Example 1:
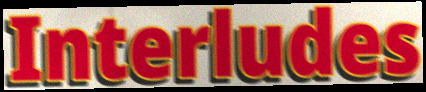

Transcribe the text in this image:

Interludes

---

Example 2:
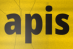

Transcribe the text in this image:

apis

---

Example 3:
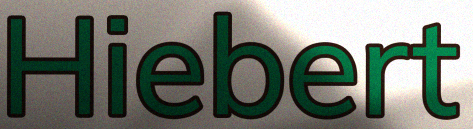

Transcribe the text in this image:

Hiebert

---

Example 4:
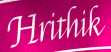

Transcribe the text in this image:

Hrithik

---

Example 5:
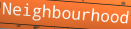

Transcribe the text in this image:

Neighbourhood